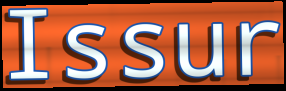
Issur